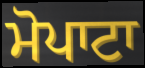
ਮੋਪਾਟਾ